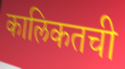
कालिकतची